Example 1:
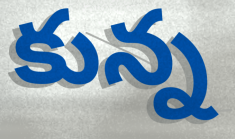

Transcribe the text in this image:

కున్న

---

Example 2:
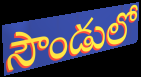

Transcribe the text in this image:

సౌండులో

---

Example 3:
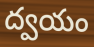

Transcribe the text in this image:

ద్వయం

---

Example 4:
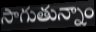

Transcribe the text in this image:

సాగుతున్నాం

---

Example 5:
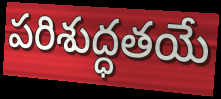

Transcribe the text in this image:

పరిశుద్ధతయే